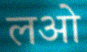
लओ